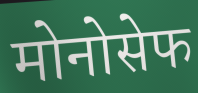
मोनोसेफ